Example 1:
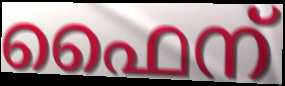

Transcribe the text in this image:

ഫൈന്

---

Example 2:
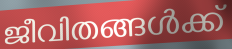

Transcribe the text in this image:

ജീവിതങ്ങൾക്ക്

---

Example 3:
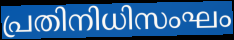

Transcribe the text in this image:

പ്രതിനിധിസംഘം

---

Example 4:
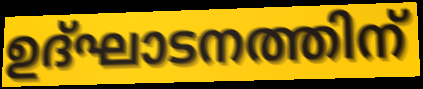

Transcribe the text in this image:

ഉദ്ഘാടനത്തിന്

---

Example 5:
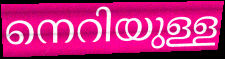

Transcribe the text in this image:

നെറിയുള്ള